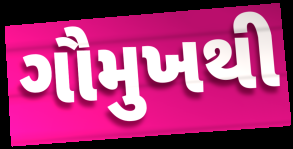
ગૌમુખથી